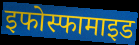
इफोस्फामाइड